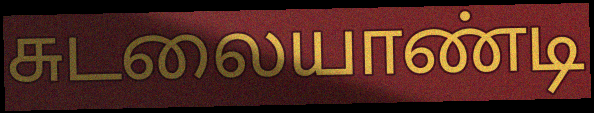
சுடலையாண்டி